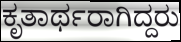
ಕೃತಾರ್ಥರಾಗಿದ್ದರು